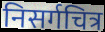
निसर्गचित्र